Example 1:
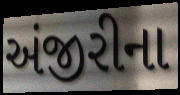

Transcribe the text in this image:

અંજીરીના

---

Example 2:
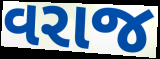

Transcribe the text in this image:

વરાજ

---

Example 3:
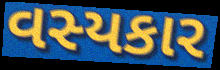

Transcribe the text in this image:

વસ્યકાર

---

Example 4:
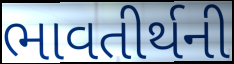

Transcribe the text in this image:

ભાવતીર્થની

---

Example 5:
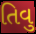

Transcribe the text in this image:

તિવુ